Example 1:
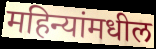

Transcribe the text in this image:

महिन्यांमधील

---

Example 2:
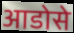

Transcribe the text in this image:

आडोसे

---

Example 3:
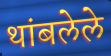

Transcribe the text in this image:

थांबलेले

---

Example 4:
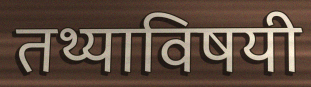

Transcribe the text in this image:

तथ्याविषयी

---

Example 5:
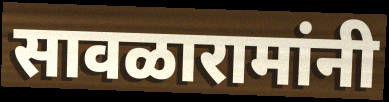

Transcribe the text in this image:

सावळारामांनी